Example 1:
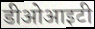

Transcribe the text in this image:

डीओआइटी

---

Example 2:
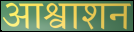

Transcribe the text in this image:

आश्वाशन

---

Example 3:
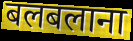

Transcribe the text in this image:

बलबलाना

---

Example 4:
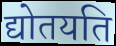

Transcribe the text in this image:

द्योतयति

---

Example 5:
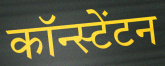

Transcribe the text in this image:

कॉन्स्टेंटन